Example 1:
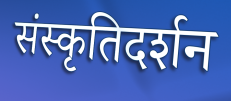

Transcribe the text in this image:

संस्कृतिदर्शन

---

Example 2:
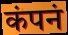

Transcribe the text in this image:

कंपनं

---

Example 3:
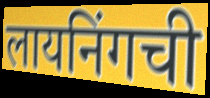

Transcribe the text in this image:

लायनिंगची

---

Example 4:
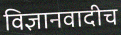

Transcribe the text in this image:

विज्ञानवादीच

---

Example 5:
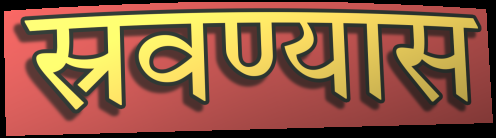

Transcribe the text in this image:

स्रवण्यास